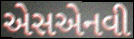
એસએનવી